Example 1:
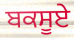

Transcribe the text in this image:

ਬਕਸੂਏ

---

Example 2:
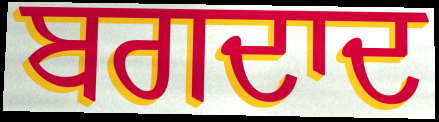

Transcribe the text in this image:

ਬਗਦਾਦ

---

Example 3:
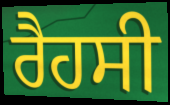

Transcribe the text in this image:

ਰੈਹਸੀ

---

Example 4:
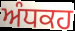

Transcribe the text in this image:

ਅੰਧਕਹ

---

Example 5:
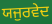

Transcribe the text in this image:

ਯਜੁਰਵੇਦ